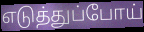
எடுத்துப்போய்